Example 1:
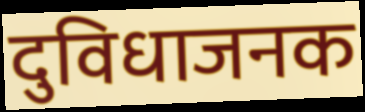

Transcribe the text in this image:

दुविधाजनक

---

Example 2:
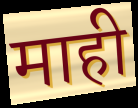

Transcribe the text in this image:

माही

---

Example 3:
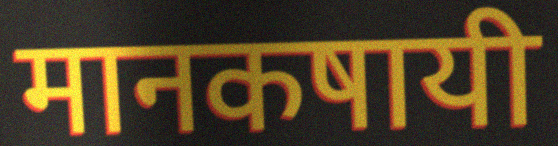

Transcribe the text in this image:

मानकषायी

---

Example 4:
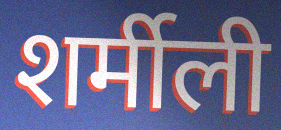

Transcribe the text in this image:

शर्मीली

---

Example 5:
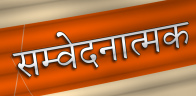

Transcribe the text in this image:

सम्वेदनात्मक